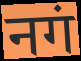
नगं